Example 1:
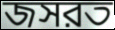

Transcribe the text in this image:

জসরত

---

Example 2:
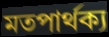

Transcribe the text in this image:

মতপার্থক্য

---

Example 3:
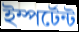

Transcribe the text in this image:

ইম্পর্টেন্ট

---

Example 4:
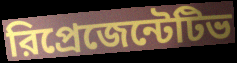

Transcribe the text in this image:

রিপ্রেজেন্টেটিভ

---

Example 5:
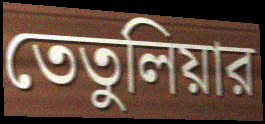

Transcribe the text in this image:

তেতুলিয়ার